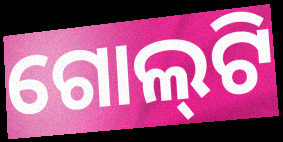
ଗୋଲ୍‍ଟି